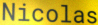
Nicolas